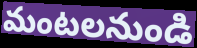
మంటలనుండి